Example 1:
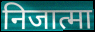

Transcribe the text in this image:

निजात्मा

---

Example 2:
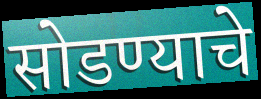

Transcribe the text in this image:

सोडण्याचे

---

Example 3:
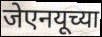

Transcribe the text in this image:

जेएनयूच्या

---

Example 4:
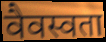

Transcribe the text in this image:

वैवस्वता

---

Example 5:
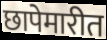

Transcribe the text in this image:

छापेमारीत